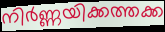
നിർണ്ണയിക്കത്തക്ക